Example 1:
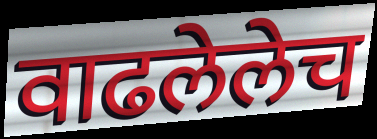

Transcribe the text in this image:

वाढलेलेच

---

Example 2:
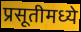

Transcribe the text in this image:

प्रसूतीमध्ये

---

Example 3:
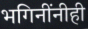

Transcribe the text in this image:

भगिनींनीही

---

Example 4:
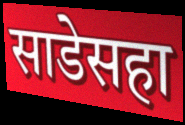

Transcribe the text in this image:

साडेसहा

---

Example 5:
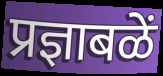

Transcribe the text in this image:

प्रज्ञाबळें